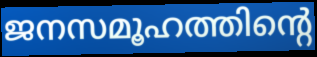
ജനസമൂഹത്തിന്റെ